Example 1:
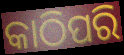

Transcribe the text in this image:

କାଠିପରି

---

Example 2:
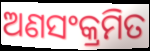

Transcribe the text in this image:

ଅଣସଂକ୍ରମିତ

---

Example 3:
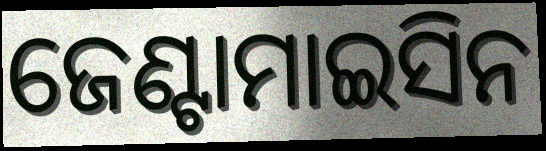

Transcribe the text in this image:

ଜେଣ୍ଟାମାଇସିନ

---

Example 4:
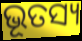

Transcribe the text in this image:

ଭୂତସ୍ୟ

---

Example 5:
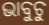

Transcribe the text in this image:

ଭାବୁଚୁ